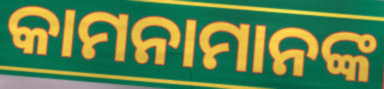
କାମନାମାନଙ୍କ